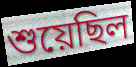
শুয়েছিল